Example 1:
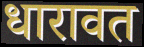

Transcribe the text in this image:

धारावत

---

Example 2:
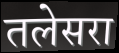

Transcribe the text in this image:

तलेसरा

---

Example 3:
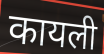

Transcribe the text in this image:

कायली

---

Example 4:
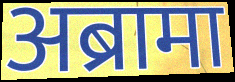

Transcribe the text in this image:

अब्रामा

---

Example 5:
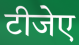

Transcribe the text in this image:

टीजेए